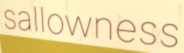
sallowness